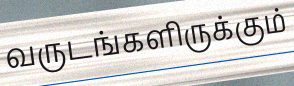
வருடங்களிருக்கும்